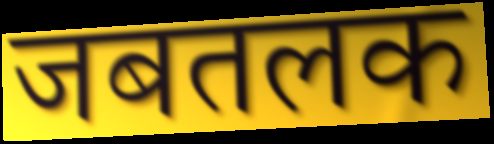
जबतलक